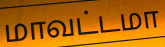
மாவட்டமா